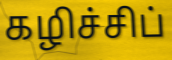
கழிச்சிப்